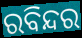
ରବିନ୍ଦର